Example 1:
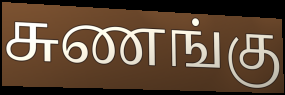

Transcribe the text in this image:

சுணங்கு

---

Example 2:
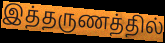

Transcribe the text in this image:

இத்தருணத்தில்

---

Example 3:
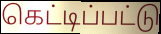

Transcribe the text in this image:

கெட்டிப்பட்டு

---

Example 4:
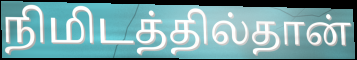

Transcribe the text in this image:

நிமிடத்தில்தான்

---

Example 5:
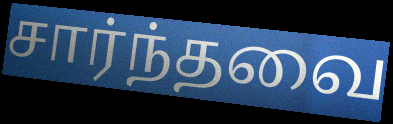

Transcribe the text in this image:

சார்ந்தவை